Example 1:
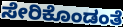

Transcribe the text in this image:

ಸೇರಿಕೊಂಡಂತೆ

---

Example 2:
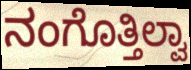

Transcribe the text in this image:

ನಂಗೊತ್ತಿಲ್ವಾ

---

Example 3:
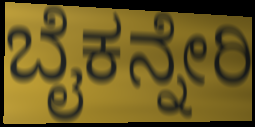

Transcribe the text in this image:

ಬೈಕನ್ನೇರಿ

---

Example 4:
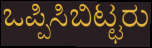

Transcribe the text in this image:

ಒಪ್ಪಿಸಿಬಿಟ್ಟರು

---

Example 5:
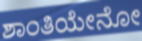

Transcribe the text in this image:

ಶಾಂತಿಯೇನೋ